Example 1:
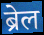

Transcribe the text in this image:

ब्रेल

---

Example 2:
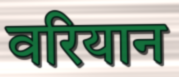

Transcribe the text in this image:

वरियान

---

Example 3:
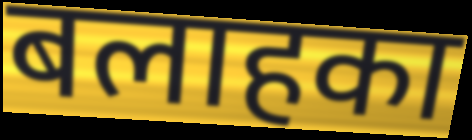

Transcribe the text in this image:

बलाहका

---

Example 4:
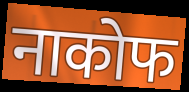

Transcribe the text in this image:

नाकोफ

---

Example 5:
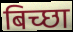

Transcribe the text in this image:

बिच्छा